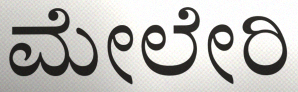
ಮೇಲೇರಿ